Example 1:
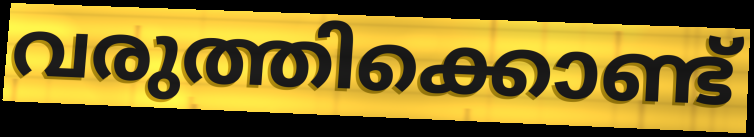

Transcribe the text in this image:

വരുത്തിക്കൊണ്ട്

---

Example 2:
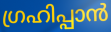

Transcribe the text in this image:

ഗ്രഹിപ്പാൻ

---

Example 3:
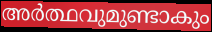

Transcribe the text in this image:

അർത്ഥവുമുണ്ടാകും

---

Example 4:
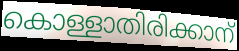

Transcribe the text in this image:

കൊള്ളാതിരിക്കാന്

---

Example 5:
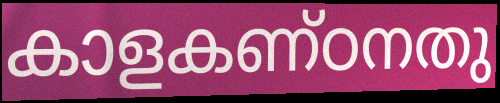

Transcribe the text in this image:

കാളകണ്ഠനതു